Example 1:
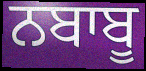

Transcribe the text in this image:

ਨਬਾਬੂ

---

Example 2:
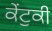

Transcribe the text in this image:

ਕੇਂਟੁਕੀ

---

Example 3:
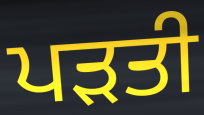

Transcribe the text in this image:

ਪੜਤੀ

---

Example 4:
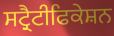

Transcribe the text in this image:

ਸਟ੍ਰੈਟੀਫਿਕੇਸ਼ਨ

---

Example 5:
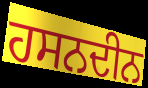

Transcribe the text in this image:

ਹਸਨਦੀਨ